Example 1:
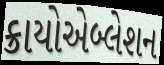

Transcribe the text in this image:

ક્રાયોએબ્લેશન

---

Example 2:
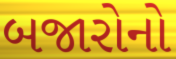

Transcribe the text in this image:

બજારોનો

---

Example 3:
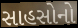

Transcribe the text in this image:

સાહસોનો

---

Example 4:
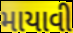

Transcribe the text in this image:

માયાવી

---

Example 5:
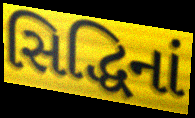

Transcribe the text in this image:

સિદ્ધિનાં